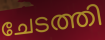
ചേടത്തി